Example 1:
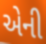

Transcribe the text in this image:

એની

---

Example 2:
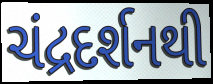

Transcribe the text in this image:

ચંદ્રદર્શનથી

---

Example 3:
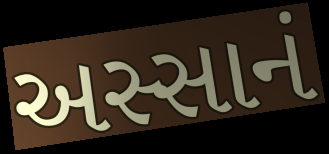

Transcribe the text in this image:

અસ્સાનં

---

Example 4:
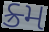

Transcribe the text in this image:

ક્ર્મ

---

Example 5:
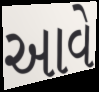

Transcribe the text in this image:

આવે